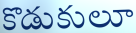
కొడుకులూ